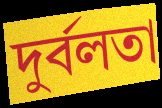
দুৰ্বলতা